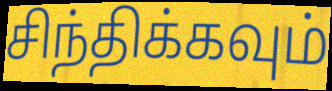
சிந்திக்கவும்